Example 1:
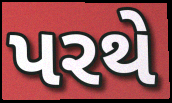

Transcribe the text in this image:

પરથે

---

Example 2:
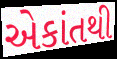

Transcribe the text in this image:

એકાંતથી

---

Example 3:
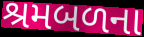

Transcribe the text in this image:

શ્રમબળના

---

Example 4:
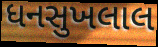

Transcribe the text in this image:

ધનસુખલાલ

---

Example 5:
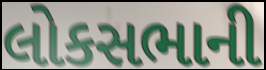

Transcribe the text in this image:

લોકસભાની